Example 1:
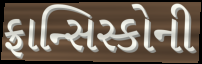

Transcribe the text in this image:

ફ્રાન્સિસ્કોની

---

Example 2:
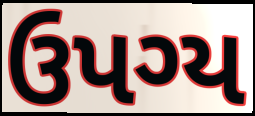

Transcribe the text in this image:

ઉપગ્ય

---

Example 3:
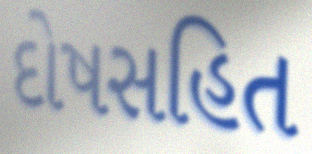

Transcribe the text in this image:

દોષસહિત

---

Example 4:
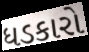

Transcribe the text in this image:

ધડકારો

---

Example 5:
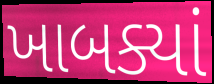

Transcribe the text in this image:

ખાબક્યાં